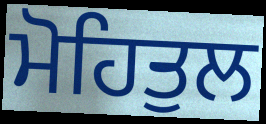
ਮੋਹਿਤੁਲ